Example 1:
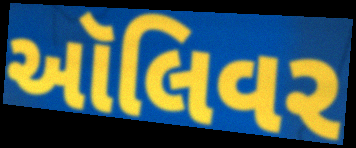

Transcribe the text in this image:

ઑલિવર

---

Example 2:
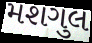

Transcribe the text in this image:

મશગુલ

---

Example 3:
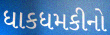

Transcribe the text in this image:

ધાકધમકીનો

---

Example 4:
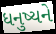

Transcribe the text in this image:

ધનુષ્યને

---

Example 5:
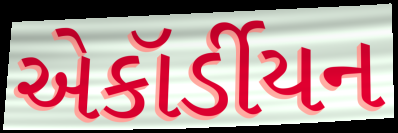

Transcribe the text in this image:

એકૉર્ડીયન